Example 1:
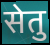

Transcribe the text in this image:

सेतु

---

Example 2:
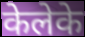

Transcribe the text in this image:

केलेके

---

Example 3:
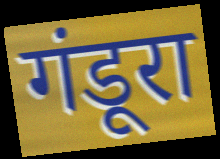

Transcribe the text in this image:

गंडूरा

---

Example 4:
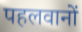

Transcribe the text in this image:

पहलवानों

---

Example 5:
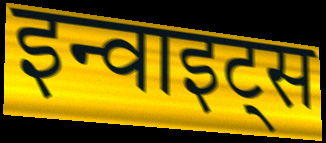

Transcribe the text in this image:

इन्वाइट्स